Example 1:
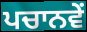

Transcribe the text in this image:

ਪਚਾਨਵੇਂ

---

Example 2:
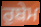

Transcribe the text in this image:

ਰੁਬੇਮ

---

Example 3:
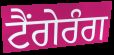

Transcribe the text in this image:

ਟੈਂਗੇਰੰਗ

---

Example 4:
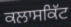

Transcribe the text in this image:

ਕਲਾਸਕਿੱਟ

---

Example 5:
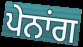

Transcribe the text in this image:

ਪੇਨਾਂਗ